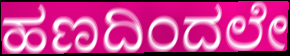
ಹಣದಿಂದಲೇ